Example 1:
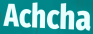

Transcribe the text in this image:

Achcha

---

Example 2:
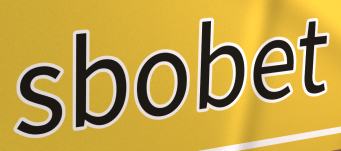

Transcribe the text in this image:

sbobet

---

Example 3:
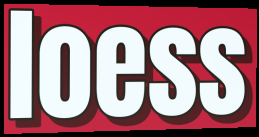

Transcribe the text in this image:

loess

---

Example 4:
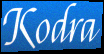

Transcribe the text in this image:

Kodra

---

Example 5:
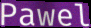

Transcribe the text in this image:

Pawel